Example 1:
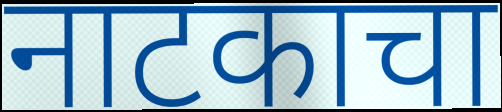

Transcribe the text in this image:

नाटकाचा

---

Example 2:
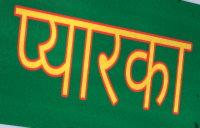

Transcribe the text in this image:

प्यारका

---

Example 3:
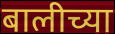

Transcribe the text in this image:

बालीच्या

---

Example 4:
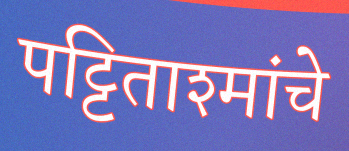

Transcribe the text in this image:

पट्टिताश्मांचे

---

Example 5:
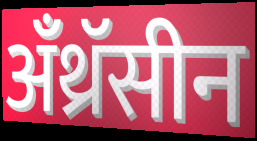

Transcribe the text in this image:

अँथ्रॅसीन